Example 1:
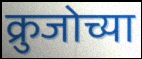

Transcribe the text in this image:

क्रुजोच्या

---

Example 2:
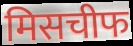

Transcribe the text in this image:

मिसचीफ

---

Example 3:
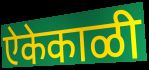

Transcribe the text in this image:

ऐकेकाळी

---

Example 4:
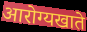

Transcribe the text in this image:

आरोग्यखाते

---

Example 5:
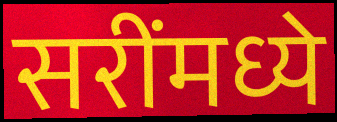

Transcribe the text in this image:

सरींमध्ये